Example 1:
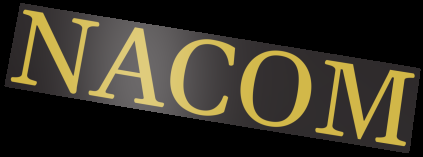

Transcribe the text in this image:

NACOM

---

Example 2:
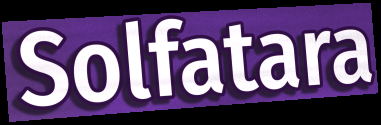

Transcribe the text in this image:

Solfatara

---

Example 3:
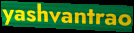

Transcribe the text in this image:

yashvantrao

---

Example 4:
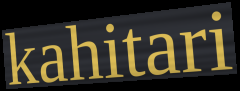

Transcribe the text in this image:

kahitari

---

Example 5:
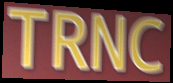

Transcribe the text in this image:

TRNC